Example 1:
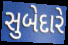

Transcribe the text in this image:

સુબેદારે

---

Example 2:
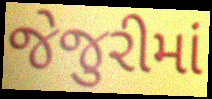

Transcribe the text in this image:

જેજુરીમાં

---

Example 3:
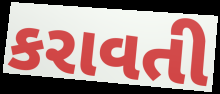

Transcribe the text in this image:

કરાવતી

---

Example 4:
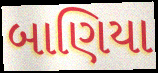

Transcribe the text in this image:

બાણિયા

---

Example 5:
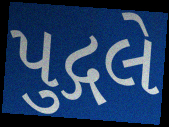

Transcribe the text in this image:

પુદ્ગલે